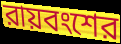
রায়বংশের